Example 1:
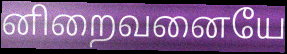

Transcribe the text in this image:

னிறைவனையே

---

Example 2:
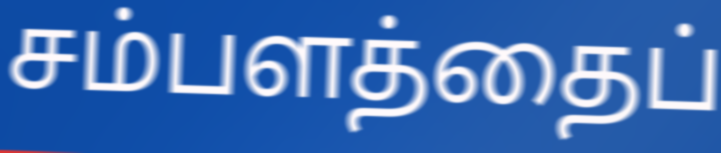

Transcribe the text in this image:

சம்பளத்தைப்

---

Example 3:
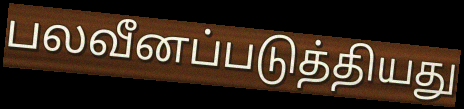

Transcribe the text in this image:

பலவீனப்படுத்தியது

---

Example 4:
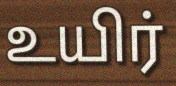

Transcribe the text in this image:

உயிர்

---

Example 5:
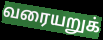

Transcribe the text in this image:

வரையறுக்